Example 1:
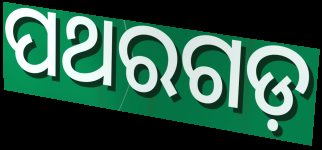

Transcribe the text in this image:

ପଥରଗଡ଼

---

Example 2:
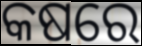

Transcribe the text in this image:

କଷରେ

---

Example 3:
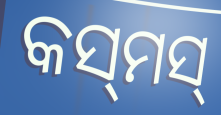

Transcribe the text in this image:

କସ୍‌ମସ୍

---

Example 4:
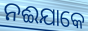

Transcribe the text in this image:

ନଈଯାକେ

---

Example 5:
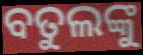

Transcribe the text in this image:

ବତୁଲଙ୍କୁ